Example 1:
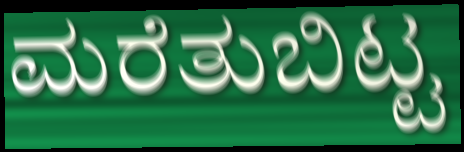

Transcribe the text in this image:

ಮರೆತುಬಿಟ್ಟ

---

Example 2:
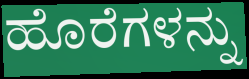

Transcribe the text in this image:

ಹೊರೆಗಳನ್ನು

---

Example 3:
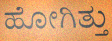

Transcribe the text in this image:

ಹೋಗಿತ್ತು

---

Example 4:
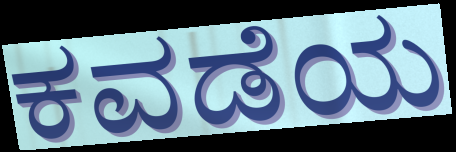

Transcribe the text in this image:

ಕವಡೆಯ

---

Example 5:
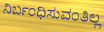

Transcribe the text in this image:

ನಿರ್ಬಂಧಿಸುವಂತಿಲ್ಲ